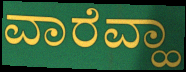
ವಾರೆವ್ಹಾ